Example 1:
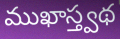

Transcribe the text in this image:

ముఖాస్త్వథ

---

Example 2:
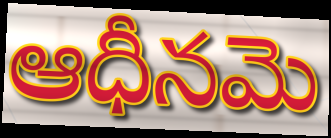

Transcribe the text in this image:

ఆధీనమె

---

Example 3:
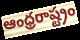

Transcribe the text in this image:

ఆంధ్రరాష్ట్రం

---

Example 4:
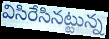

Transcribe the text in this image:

విసిరేసినట్టున్న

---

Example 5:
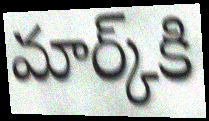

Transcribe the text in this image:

మార్క్‌కి